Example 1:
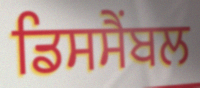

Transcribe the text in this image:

ਡਿਸਸੈਂਬਲ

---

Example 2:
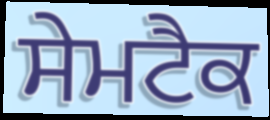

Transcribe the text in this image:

ਸੇਮਟੈਕ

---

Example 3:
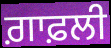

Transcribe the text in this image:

ਗ਼ਾਫ਼ਲੀ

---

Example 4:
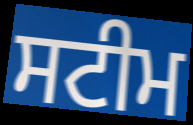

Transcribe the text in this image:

ਸਟੀਮ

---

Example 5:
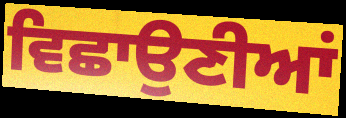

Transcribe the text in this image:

ਵਿਛਾਉਣੀਆਂ